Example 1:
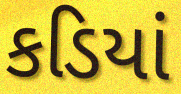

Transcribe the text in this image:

કડિયાં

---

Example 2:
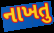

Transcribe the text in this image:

નાખતુ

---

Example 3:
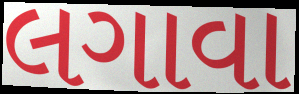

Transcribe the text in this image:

લગાવા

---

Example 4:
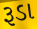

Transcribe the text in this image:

રૂડા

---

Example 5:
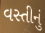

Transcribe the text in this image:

વસ્તીનું